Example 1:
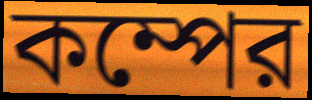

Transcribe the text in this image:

কম্পের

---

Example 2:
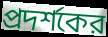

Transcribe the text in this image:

প্রদর্শকের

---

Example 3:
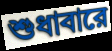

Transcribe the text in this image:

শুধাবারে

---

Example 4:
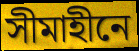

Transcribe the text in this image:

সীমাহীনে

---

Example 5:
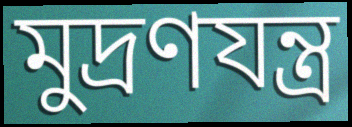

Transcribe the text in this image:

মুদ্রণযন্ত্র